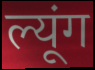
ल्यूंग